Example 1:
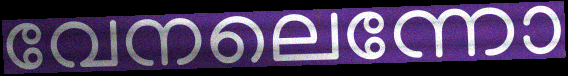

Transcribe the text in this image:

വേനലെന്നോ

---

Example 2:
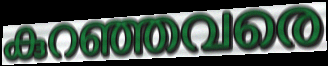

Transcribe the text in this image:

കുറഞ്ഞവരെ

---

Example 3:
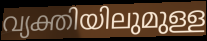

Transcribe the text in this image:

വ്യക്തിയിലുമുള്ള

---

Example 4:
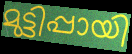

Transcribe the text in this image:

മുട്ടിപ്പായി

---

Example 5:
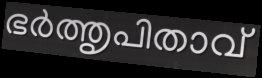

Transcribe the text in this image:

ഭർത്തൃപിതാവ്